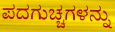
ಪದಗುಚ್ಚಗಳನ್ನು